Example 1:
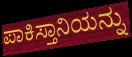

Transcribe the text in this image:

ಪಾಕಿಸ್ತಾನಿಯನ್ನು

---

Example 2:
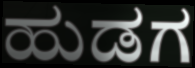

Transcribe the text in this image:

ಹುಡಗ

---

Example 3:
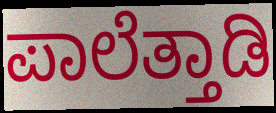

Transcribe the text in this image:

ಪಾಲೆತ್ತಾಡಿ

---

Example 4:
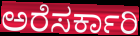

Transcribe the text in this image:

ಅರೆಸರ್ಕಾರಿ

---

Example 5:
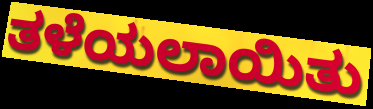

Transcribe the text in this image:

ತಳೆಯಲಾಯಿತು